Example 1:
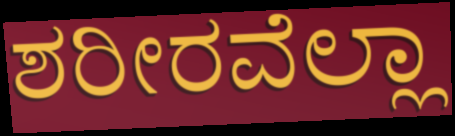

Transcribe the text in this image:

ಶರೀರವೆಲ್ಲಾ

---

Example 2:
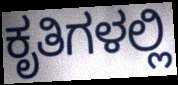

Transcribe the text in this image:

ಕೃತಿಗಳಲ್ಲಿ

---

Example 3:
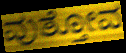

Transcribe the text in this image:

ವುತ್ತೋವ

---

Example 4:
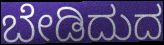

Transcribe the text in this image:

ಬೇಡಿದುದ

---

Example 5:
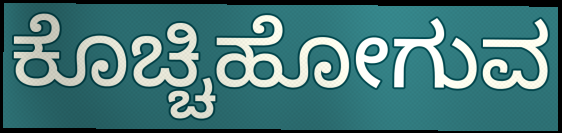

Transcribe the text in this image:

ಕೊಚ್ಚಿಹೋಗುವ